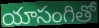
యాసంగితో